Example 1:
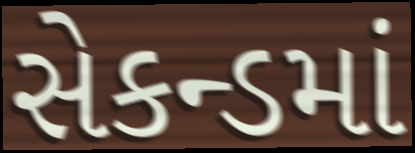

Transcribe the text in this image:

સેકન્ડમાં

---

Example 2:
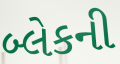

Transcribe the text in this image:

બ્લેકની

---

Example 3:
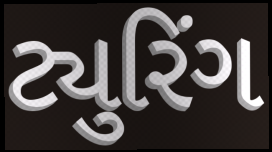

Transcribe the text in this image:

ટ્યુરિંગ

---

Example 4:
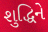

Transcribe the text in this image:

શુદ્ધિને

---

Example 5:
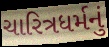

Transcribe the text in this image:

ચારિત્રધર્મનું